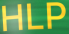
HLP